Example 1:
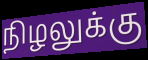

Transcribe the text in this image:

நிழலுக்கு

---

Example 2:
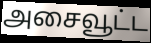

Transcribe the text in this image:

அசைவூட்ட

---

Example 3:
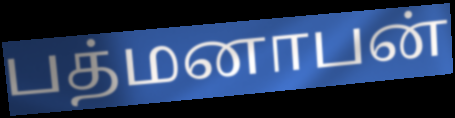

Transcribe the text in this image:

பத்மனாபன்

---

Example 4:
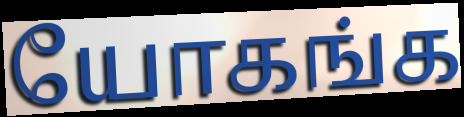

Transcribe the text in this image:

யோகங்க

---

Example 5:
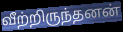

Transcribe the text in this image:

வீற்றிருந்தனன்